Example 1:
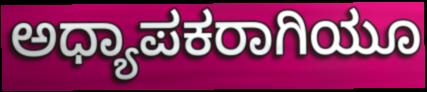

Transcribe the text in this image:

ಅಧ್ಯಾಪಕರಾಗಿಯೂ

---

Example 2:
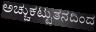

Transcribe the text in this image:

ಅಚ್ಚುಕಟ್ಟುತನದಿಂದ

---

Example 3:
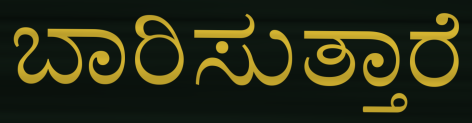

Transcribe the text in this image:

ಬಾರಿಸುತ್ತಾರೆ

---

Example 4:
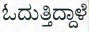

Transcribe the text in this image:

ಓದುತ್ತಿದ್ದಾಳೆ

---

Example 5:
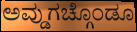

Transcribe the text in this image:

ಅವ್ಡುಗಚ್ಗೊಂಡೂ